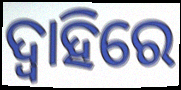
ଦ୍ୱାହିରେ